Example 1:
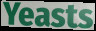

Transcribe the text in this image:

Yeasts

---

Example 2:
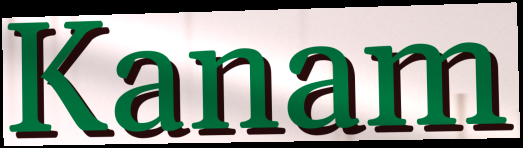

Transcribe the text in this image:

Kanam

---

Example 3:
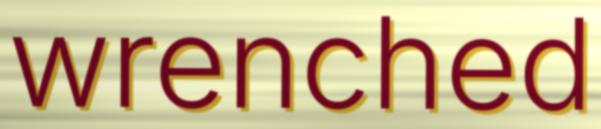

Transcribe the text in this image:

wrenched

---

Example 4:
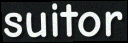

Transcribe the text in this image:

suitor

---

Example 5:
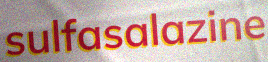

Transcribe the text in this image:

sulfasalazine